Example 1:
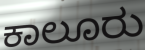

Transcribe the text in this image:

ಕಾಲೂರು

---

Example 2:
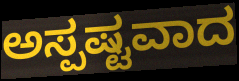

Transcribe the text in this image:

ಅಸ್ಪಷ್ಟವಾದ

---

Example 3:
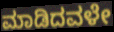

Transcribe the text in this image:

ಮಾಡಿದವಳೇ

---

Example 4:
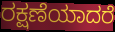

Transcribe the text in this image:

ರಕ್ಷಣೆಯಾದರೆ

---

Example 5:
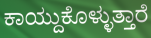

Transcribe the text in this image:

ಕಾಯ್ದುಕೊಳ್ಳುತ್ತಾರೆ